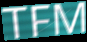
TFM